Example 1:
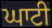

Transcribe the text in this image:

ਘਾਟੀ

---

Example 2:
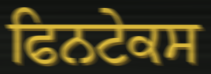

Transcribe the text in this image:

ਫਿਨਟੇਕਸ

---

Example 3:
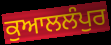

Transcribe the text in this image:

ਕੁਆਲਲੰਪੁਰ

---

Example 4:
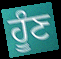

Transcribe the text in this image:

ਹੂੰਣ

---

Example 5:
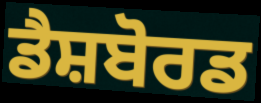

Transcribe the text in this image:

ਡੈਸ਼ਬੋਰਡ